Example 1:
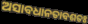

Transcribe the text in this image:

ଅସାବଧାନତାବଶତଃ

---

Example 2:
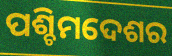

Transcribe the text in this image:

ପଶ୍ଚିମଦେଶର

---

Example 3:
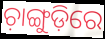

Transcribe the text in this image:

ଚ଼ାଙ୍ଗୁଡ଼ିରେ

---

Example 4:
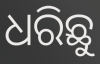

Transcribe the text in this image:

ଧରିଛୁ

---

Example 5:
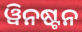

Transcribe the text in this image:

ୱିନଷ୍ଟନ